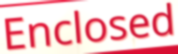
Enclosed